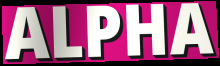
ALPHA